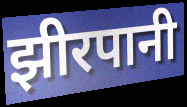
झीरपानी